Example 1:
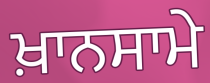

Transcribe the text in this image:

ਖ਼ਾਨਸਾਮੇ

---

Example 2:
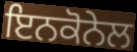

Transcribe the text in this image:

ਇਨਕੋਨੇਲ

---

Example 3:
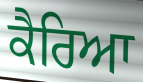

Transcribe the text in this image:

ਕੈਰਿਆ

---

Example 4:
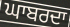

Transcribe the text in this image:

ਘਾਬਰਦਾ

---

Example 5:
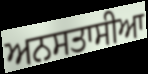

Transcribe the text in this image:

ਅਨਸਤਾਸੀਆ